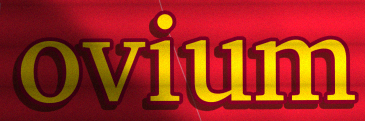
ovium